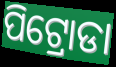
ପିଟ୍ରୋଡା